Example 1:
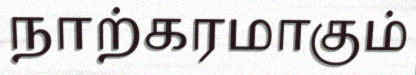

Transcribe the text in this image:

நாற்கரமாகும்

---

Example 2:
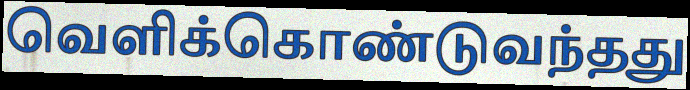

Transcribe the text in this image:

வெளிக்கொண்டுவந்தது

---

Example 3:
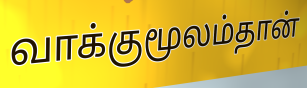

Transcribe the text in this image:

வாக்குமூலம்தான்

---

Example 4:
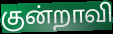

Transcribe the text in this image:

குன்றாவி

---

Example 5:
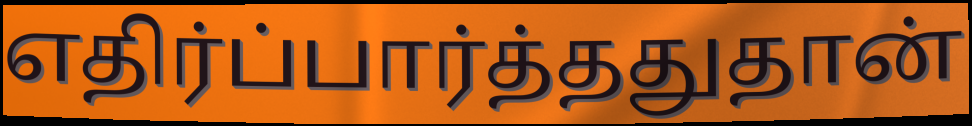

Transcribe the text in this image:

எதிர்ப்பார்த்ததுதான்